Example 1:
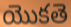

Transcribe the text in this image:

యొకతె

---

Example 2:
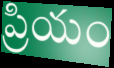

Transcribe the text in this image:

ప్రియం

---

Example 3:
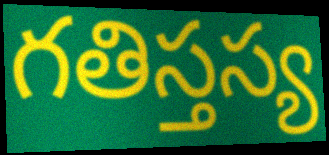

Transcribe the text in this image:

గతిస్తస్య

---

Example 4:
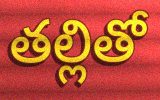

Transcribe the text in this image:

తల్లితో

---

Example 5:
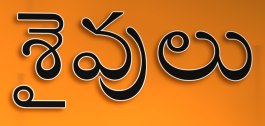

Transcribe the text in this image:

శైవులు